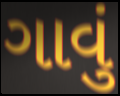
ગાવું